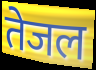
तेजल